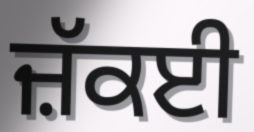
ਜ਼ੱਕਈ